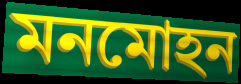
মনমোহন